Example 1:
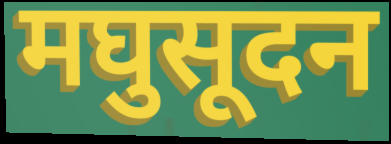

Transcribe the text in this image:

मघुसूदन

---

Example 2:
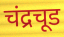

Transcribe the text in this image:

चंद्रचूड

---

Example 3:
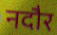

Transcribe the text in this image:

नदौर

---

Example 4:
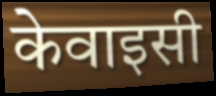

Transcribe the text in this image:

केवाइसी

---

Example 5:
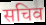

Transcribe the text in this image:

सचिव